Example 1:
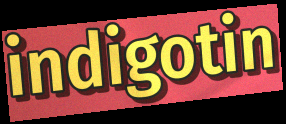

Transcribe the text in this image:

indigotin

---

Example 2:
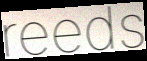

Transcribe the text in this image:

reeds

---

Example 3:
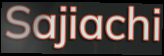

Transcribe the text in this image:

Sajiachi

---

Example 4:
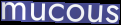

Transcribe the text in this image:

mucous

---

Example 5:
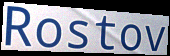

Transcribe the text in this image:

Rostov